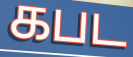
கபட